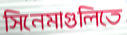
সিনেমাগুলিতে